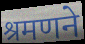
श्रमणने